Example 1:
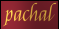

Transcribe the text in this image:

pachal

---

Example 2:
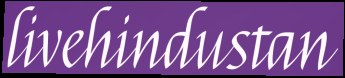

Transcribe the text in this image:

livehindustan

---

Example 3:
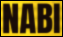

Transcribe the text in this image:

NABI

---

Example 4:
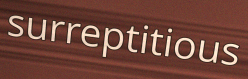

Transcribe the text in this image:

surreptitious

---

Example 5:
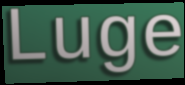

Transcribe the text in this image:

Luge